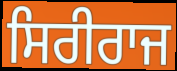
ਸਿਰੀਰਾਜ